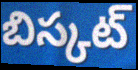
బిస్కట్